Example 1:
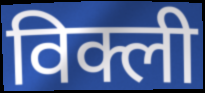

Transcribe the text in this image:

विक्ली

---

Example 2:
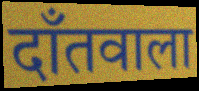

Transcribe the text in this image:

दाँतवाला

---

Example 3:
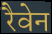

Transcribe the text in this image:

रैवेन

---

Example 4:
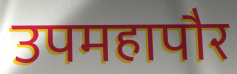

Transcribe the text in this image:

उपमहापौर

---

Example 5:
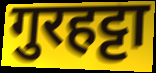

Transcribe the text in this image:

गुरहट्टा